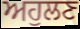
ਅਹੁਲਣ